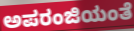
ಅಪರಂಜಿಯಂತೆ